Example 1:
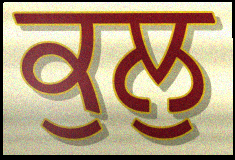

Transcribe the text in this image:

ਕੁਲੁ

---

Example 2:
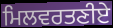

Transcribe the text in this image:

ਮਿਲਵਰਤਣੀਏ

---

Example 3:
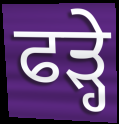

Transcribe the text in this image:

ਫੜ੍ਹੇ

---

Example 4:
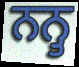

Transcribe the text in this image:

ਨਨ੍ਤ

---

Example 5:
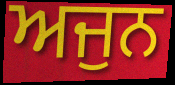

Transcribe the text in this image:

ਅਜੁਨ